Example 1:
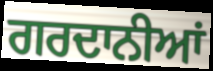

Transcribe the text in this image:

ਗਰਦਾਨੀਆਂ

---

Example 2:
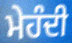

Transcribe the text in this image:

ਮੇਹੰਦੀ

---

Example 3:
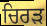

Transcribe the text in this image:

ਚਿਰੜ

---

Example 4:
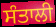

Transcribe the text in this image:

ਸੰਤਾਲੀ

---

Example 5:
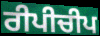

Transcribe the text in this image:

ਰੀਪੀਚੀਪ